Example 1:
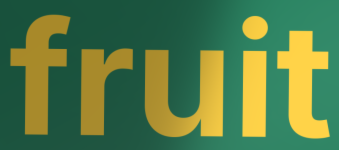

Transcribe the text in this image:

fruit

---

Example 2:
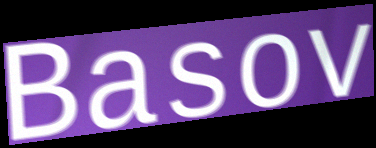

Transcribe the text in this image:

Basov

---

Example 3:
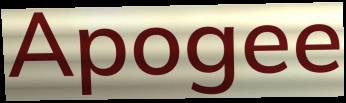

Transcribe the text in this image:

Apogee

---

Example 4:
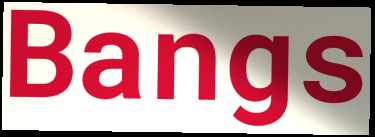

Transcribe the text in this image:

Bangs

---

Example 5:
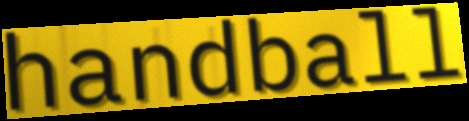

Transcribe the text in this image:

handball